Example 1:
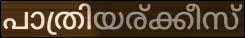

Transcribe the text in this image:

പാത്രിയര്ക്കീസ്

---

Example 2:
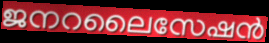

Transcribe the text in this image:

ജനറലൈസേഷൻ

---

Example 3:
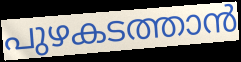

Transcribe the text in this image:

പുഴകടത്താൻ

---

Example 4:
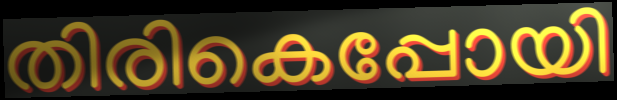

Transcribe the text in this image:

തിരികെപ്പോയി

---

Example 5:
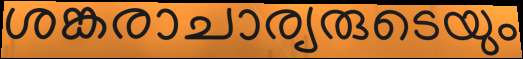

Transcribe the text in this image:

ശങ്കരാചാര്യരുടെയും